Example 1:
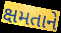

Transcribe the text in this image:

ક્ષમતાને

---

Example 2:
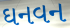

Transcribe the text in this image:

ઘનવન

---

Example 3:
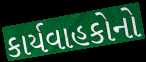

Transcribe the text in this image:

કાર્યવાહકોનો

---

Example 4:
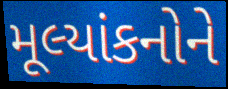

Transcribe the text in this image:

મૂલ્યાંકનોને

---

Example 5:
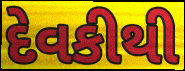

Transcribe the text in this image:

દેવકીથી